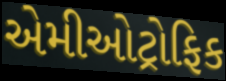
એમીઓટ્રોફિક